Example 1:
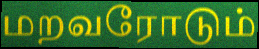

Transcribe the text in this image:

மறவரோடும்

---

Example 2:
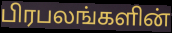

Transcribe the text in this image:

பிரபலங்களின்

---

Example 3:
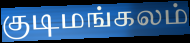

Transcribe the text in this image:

குடிமங்கலம்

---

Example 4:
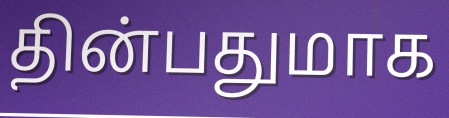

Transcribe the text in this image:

தின்பதுமாக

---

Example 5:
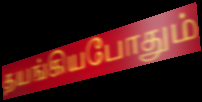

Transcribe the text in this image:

தயங்கியபோதும்